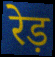
रेड़